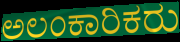
ಅಲಂಕಾರಿಕರು